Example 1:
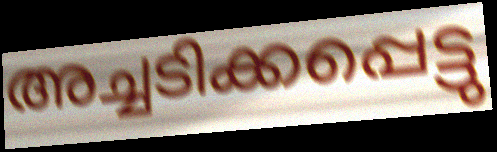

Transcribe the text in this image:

അച്ചടിക്കപ്പെട്ടു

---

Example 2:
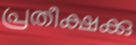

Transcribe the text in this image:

പ്രതീക്ഷക്കു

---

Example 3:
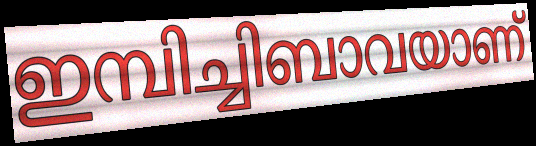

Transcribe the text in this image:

ഇമ്പിച്ചിബാവയാണ്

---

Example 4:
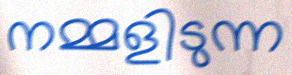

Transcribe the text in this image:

നമ്മളിടുന്ന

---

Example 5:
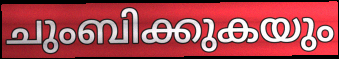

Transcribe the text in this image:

ചുംബിക്കുകയും